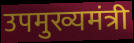
उपमुख्यमंत्री